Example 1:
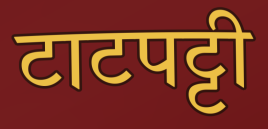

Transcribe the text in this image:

टाटपट्टी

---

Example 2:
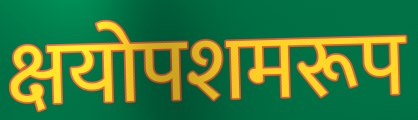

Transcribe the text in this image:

क्षयोपशमरूप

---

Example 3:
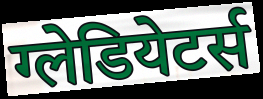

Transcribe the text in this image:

ग्लेडियेटर्स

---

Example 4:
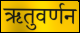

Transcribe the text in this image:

ऋतुवर्णन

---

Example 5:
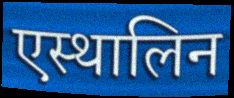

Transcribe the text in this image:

एस्थालिन